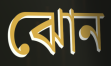
ঝোন